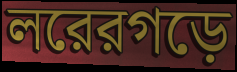
লরেরগড়ে